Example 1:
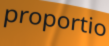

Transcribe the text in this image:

proportio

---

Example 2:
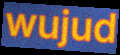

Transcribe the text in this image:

wujud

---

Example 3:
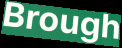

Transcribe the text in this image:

Brough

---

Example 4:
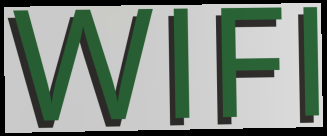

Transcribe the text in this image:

WIFI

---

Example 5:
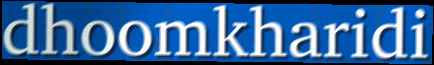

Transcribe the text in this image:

dhoomkharidi